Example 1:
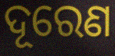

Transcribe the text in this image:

ଦୂରେଣ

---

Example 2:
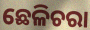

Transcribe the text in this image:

ଛେଳିଚରା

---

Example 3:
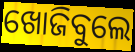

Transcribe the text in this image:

ଖୋଜିବୁଲେ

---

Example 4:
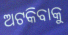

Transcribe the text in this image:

ଅଟକିବାକୁ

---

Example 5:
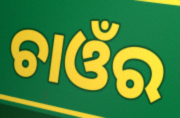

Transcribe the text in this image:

ଚାଓଁର